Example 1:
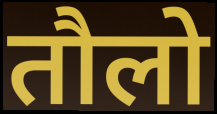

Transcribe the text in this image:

तौलो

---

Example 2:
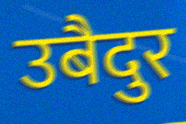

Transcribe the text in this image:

उबैदुर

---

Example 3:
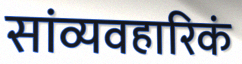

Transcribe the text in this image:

सांव्यवहारिकं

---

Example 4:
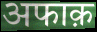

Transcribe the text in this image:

अफाक़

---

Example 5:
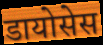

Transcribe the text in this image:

डायोसेस